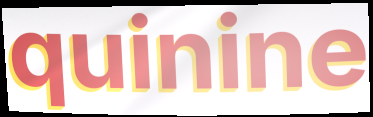
quinine